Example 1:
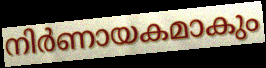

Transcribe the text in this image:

നിർണായകമാകും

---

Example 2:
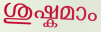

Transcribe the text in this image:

ശുഷ്കമാം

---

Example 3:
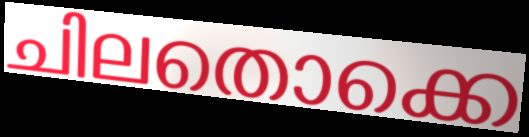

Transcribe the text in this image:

ചിലതൊക്കെ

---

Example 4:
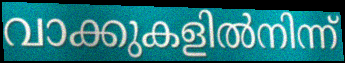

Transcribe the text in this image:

വാക്കുകളിൽനിന്ന്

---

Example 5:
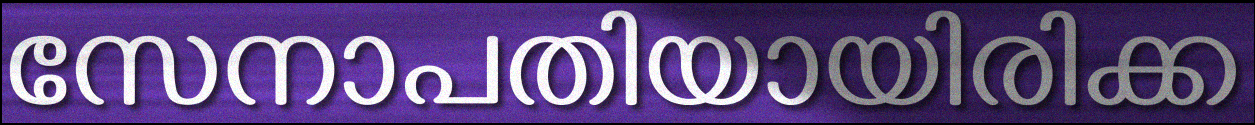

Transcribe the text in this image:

സേനാപതിയായിരിക്ക